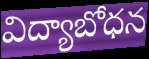
విద్యాబోధన